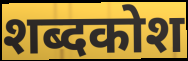
शब्दकोश